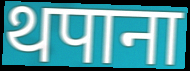
थपाना